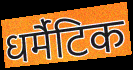
धर्मैटिक